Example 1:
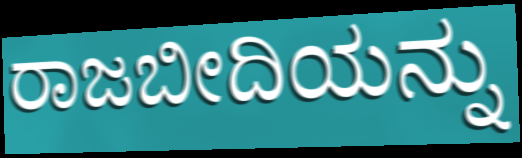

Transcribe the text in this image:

ರಾಜಬೀದಿಯನ್ನು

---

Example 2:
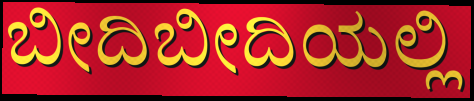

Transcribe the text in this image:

ಬೀದಿಬೀದಿಯಲ್ಲಿ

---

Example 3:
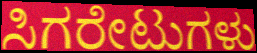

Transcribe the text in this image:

ಸಿಗರೇಟುಗಳು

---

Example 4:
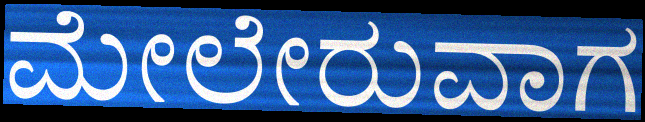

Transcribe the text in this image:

ಮೇಲೇರುವಾಗ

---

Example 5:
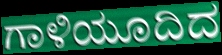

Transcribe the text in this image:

ಗಾಳಿಯೂದಿದ